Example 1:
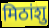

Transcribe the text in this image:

मिठांशु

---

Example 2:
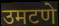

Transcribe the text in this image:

उमटणे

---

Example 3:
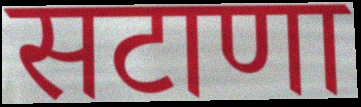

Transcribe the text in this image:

सटाणा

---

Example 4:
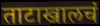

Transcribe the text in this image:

ताटाखालचं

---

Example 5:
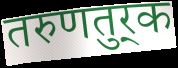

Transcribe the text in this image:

तरुणतुर्क